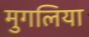
मुगलिया